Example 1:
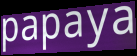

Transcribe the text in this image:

papaya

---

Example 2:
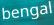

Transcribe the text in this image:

bengal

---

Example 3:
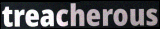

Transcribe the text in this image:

treacherous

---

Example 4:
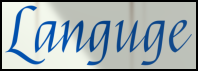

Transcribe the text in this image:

Languge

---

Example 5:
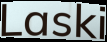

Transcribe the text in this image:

Laski